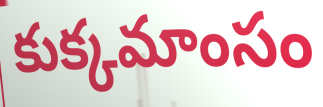
కుక్కమాంసం